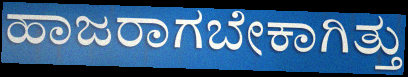
ಹಾಜರಾಗಬೇಕಾಗಿತ್ತು